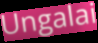
Ungalai